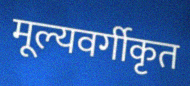
मूल्यवर्गीकृत